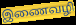
இணைவழி